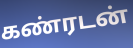
கண்ரடன்